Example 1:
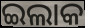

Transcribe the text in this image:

ଇଲାକ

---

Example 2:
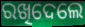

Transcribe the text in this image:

ରଖିଦେଲେ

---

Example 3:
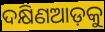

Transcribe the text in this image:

ଦକ୍ଷିଣଆଡ଼କୁ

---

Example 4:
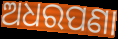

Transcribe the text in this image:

ଅଧରପଣା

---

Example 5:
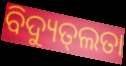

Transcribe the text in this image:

ବିଦ୍ୟୁତ୍‌ଲତା